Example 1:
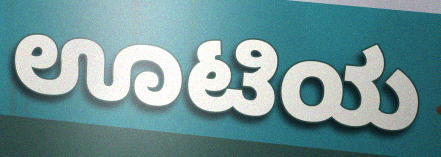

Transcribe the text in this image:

ಊಟಿಯ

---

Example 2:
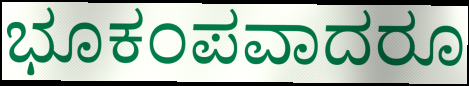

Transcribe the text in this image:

ಭೂಕಂಪವಾದರೂ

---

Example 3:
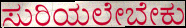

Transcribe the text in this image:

ಸುರಿಯಲೇಬೇಕು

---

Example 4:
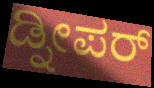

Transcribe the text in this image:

ಡ್ನೀಪರ್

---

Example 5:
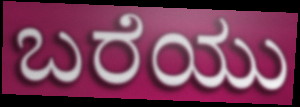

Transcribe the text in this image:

ಬರೆಯು